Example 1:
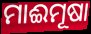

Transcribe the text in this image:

ମାଈମୂଷା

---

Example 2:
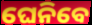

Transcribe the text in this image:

ଘେନିବେ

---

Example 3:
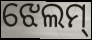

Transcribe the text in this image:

ଝେଲମ୍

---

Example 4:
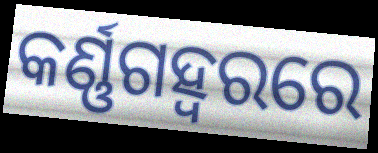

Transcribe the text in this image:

କର୍ଣ୍ଣଗହ୍ଵରରେ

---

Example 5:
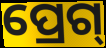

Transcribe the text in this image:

ପ୍ରେଗ୍